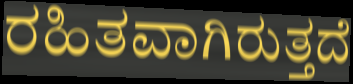
ರಹಿತವಾಗಿರುತ್ತದೆ